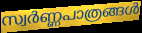
സ്വർണ്ണപാത്രങ്ങൾ